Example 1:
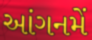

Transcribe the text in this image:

આંગનમેં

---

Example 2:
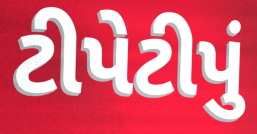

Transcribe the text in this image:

ટીપેટીપું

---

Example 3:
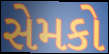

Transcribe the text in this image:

સેમકો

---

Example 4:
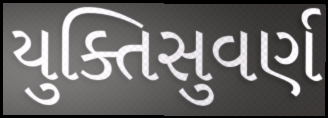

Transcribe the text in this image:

યુક્તિસુવર્ણ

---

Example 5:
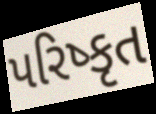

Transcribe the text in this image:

પરિષ્કૃત